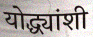
योद्ध्यांशी